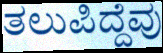
ತಲುಪಿದ್ದೆವು